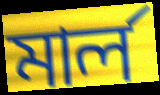
মার্ল